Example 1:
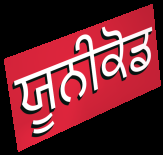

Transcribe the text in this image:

ਯੂਨੀਕੋਡ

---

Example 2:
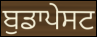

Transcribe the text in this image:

ਬੁਡਾਪੇਸਟ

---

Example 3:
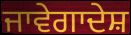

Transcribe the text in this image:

ਜਾਵੇਗਾਦੇਸ਼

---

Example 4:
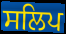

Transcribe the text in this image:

ਸਲਿਪ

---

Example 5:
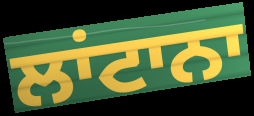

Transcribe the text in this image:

ਲਾਂਟਾਨਾ